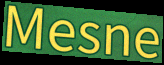
Mesne